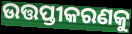
ଉତ୍ତପ୍ତୀକରଣକୁ